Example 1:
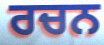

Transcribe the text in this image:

ਰਚਨ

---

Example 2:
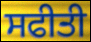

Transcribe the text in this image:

ਸਫੀਤੀ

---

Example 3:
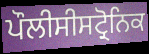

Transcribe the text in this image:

ਪੌਲੀਸੀਸਟ੍ਰੋਨਿਕ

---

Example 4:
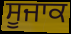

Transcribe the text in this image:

ਸੂਜਾਕ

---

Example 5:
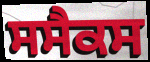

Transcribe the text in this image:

ਸਸੈਕਸ